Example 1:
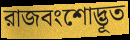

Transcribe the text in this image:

রাজবংশোদ্ভূত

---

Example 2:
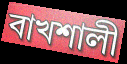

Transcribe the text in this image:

বাখশালী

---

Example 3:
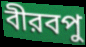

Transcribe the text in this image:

বীরবপু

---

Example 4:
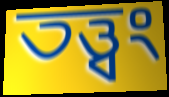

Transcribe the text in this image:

তত্ত্বং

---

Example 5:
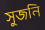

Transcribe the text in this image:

সুজনি